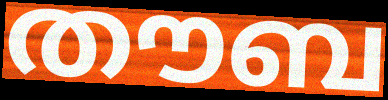
തൗബ